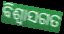
ବିଶ୍ଵାସଗତ